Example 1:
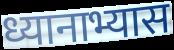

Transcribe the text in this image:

ध्यानाभ्यास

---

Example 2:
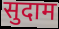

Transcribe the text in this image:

सुदाम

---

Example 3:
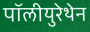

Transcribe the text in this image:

पॉलीयुरेथेन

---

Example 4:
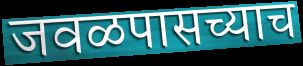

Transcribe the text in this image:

जवळपासच्याच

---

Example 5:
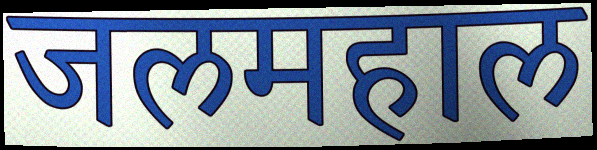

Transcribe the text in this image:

जलमहाल